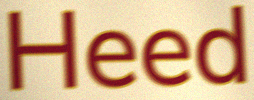
Heed